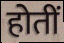
होतीं